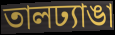
তালঢ্যাঙা